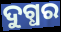
ଦୁଗ୍ଧର